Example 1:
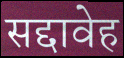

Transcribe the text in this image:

सद्दावेह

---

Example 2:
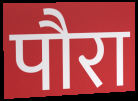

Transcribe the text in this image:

पौरा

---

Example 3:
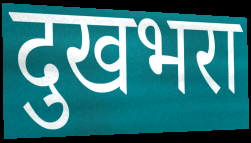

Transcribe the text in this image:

दुखभरा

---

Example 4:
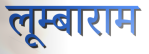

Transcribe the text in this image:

लूम्बाराम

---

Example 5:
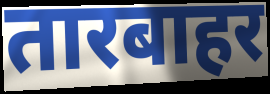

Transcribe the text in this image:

तारबाहर